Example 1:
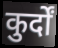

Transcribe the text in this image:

कुर्दों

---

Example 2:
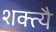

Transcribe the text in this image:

शक्त्यै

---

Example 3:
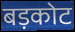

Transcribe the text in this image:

बड़कोट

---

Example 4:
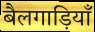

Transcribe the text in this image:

बैलगाड़ियाँ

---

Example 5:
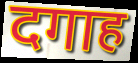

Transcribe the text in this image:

दगाह